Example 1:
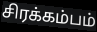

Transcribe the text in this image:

சிரக்கம்பம்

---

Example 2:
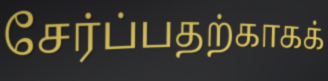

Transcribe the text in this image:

சேர்ப்பதற்காகக்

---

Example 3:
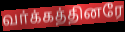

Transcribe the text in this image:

வர்க்கத்தினரே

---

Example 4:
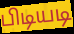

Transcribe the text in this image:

பிடியடி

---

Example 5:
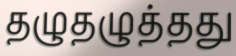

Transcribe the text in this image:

தழுதழுத்தது